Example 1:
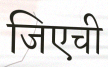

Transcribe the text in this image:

जिएची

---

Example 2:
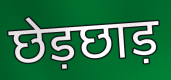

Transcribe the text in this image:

छेड़छाड़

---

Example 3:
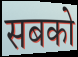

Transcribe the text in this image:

सबको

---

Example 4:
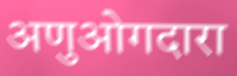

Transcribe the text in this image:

अणुओगदारा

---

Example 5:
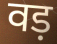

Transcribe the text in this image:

वड़